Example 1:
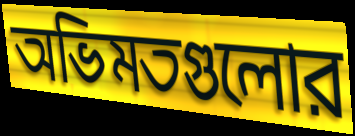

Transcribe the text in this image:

অভিমতগুলোর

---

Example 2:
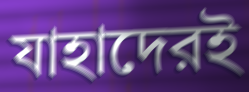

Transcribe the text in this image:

যাহাদেরই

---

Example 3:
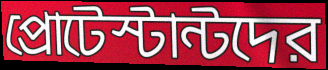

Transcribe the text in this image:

প্রোটেস্টান্টদের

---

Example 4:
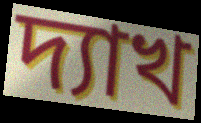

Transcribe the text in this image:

দ্যাখ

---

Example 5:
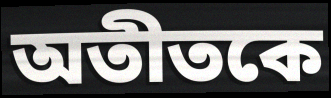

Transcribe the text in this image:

অতীতকে